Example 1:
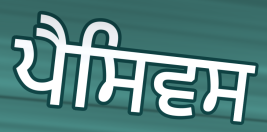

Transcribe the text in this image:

ਪੈਸਿਵਸ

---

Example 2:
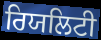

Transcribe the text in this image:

ਰਿਯਲਿਟੀ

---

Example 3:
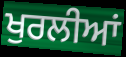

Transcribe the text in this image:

ਖੁਰਲੀਆਂ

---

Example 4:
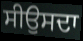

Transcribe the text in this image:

ਸੀਉਸਦਾ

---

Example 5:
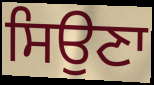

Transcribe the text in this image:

ਸਿਉਣਾ